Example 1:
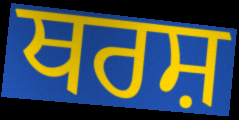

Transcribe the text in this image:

ਥਰਸ਼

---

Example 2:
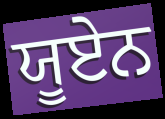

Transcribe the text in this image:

ਯੂਏਨ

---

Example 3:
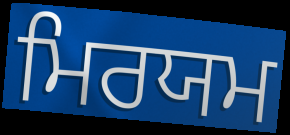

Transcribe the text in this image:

ਮਿਰਯਮ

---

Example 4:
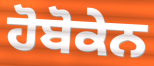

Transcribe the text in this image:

ਹੋਬੋਕੇਨ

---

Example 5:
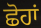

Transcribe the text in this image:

ਛੋਹਾਂ